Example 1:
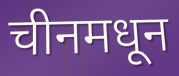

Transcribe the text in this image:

चीनमधून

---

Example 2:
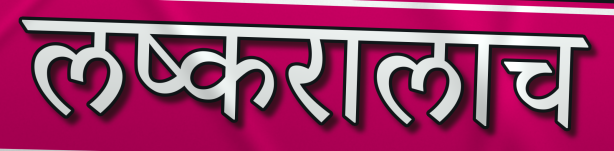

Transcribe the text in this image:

लष्करालाच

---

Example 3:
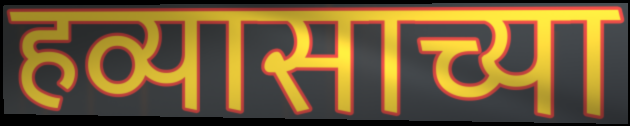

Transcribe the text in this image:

हव्यासाच्या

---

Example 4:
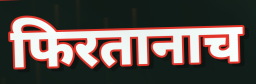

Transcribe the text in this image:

फिरतानाच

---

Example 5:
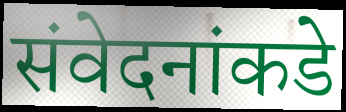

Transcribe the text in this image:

संवेदनांकडे